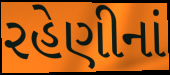
રહેણીનાં